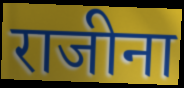
राजीना